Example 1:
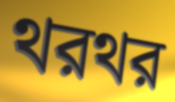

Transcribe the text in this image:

থরথর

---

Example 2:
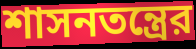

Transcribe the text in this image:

শাসনতন্ত্রের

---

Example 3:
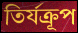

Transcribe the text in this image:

তির্যক্রূপ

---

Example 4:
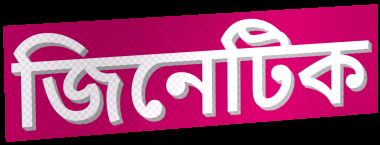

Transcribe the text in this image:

জিনেটিক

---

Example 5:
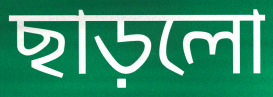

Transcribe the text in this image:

ছাড়লো